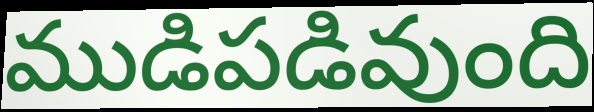
ముడిపడివుంది